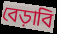
বেড়াবি